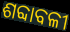
ଶବ୍ଦାବଳୀ